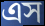
এস